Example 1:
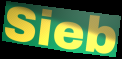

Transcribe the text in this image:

Sieb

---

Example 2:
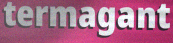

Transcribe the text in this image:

termagant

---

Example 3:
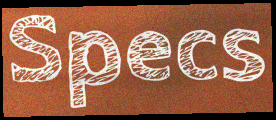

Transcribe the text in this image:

Specs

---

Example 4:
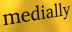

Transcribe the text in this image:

medially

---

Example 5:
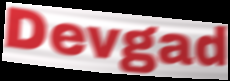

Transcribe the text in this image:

Devgad